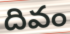
దివం